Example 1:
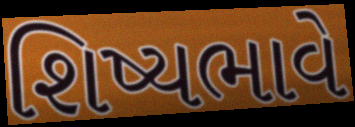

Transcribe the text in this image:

શિષ્યભાવે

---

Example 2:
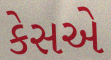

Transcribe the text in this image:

કેસએ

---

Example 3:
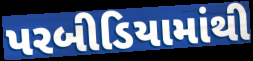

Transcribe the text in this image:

પરબીડિયામાંથી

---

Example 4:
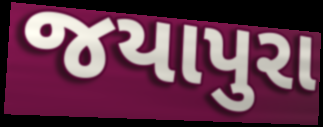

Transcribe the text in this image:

જયાપુરા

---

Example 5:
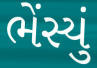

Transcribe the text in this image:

ભેંસ્યું